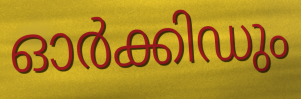
ഓർക്കിഡും